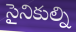
సైనికుల్ని